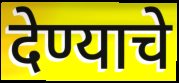
देण्याचे